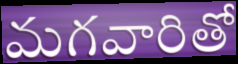
మగవారితో